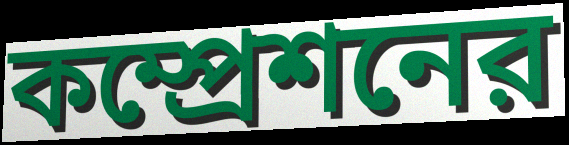
কম্প্রেশনের